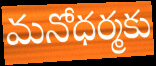
మనోధర్మకు